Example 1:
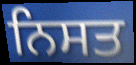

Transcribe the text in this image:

ਨਿਸਤ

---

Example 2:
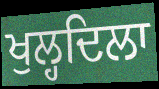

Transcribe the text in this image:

ਖੁਲ੍ਹਦਿਲਾ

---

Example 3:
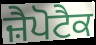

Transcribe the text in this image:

ਜ਼ੈਪੋਟੈਕ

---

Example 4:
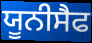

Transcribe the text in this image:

ਯੂਨੀਸੈਫ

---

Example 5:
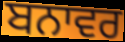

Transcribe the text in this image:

ਬਨਾਵਰ